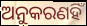
ଅନୁକରଣହିଁ